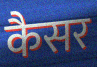
कैसर